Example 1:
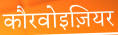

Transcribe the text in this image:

कौरवोइज़ियर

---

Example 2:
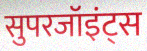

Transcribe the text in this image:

सुपरजॉइंट्स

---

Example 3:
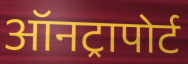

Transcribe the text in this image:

ऑनट्रापोर्ट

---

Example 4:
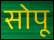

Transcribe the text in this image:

सोपू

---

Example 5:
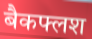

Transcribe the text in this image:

बैकफ्लश